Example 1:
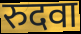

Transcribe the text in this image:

रुदवा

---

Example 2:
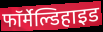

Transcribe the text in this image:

फॉर्मेल्डिहाइड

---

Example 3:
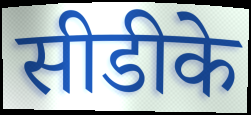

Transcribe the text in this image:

सीडीके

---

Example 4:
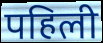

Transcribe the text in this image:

पहिली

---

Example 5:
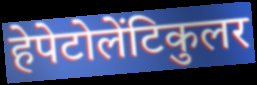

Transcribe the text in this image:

हेपेटोलेंटिकुलर